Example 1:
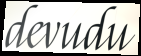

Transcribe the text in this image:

devudu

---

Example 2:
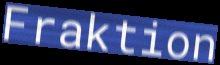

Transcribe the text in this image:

Fraktion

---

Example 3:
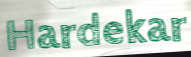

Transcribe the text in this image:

Hardekar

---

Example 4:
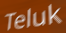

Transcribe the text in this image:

Teluk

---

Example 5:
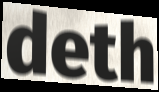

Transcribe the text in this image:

deth